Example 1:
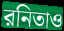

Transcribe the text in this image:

রনিতাও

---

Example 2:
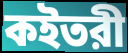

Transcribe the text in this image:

কইতরী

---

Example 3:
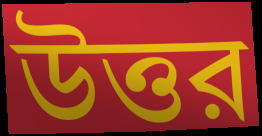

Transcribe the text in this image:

উত্তর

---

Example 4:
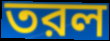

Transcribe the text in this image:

তরল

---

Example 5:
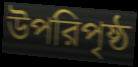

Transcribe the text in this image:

উপরিপৃষ্ঠ